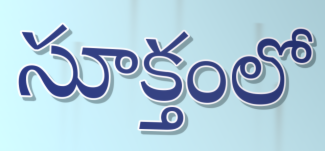
సూక్తంలో